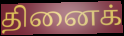
தினைக்